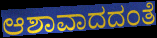
ಆಶಾವಾದದಂತೆ